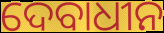
ଦେବାଧୀନ